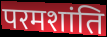
परमशांति